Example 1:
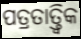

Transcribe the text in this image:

ପତ୍ରତାତ୍ତ୍ୱିକ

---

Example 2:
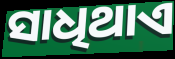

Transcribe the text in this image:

ସାଧିଥାଏ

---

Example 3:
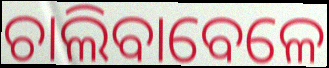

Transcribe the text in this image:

ଚାଲିବାବେଳେ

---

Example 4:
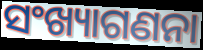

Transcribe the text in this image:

ସଂଖ୍ୟାଗଣନା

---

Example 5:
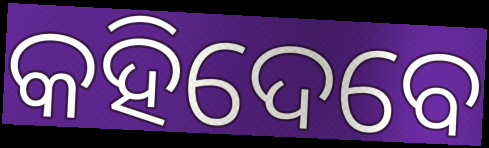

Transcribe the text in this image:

କହିଦେବେ